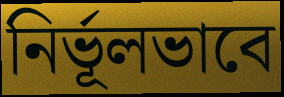
নির্ভূলভাবে